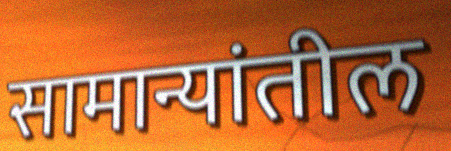
सामान्यांतील